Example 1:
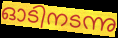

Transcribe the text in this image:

ഓടിനടന്നു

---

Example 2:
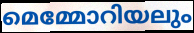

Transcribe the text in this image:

മെമ്മോറിയലും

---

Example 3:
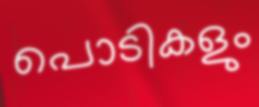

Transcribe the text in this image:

പൊടികളും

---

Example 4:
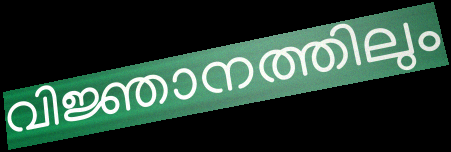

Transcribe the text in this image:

വിജ്ഞാനത്തിലും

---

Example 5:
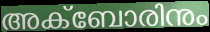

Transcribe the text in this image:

അക്ബോരിനും